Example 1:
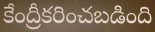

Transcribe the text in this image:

కేంద్రీకరించబడింది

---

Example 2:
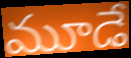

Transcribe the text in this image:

మూడే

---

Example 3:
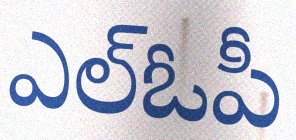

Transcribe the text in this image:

ఎల్ఓపీ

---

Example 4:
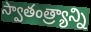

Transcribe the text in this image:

స్వాతంత్ర్యాన్ని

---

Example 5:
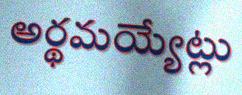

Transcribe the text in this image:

అర్థమయ్యేట్లు